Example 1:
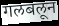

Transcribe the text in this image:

गलबलून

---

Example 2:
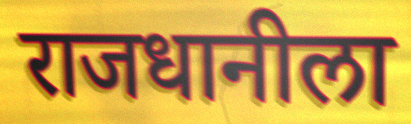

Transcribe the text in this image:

राजधानीला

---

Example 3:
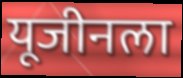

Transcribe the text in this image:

यूजीनला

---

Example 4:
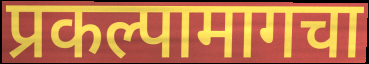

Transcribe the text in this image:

प्रकल्पामागचा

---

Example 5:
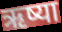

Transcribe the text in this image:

ऋष्या